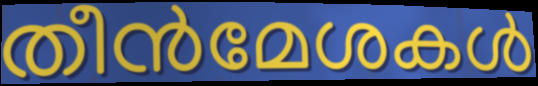
തീൻമേശകൾ